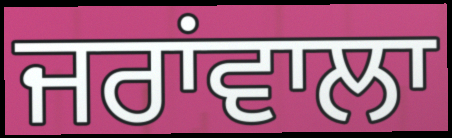
ਜਰਾਂਵਾਲਾ